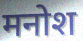
मनोश